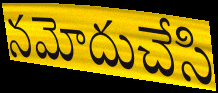
నమోదుచేసి